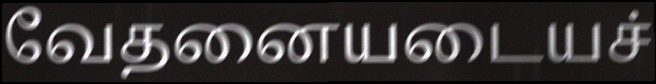
வேதனையடையச்